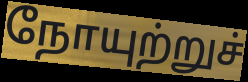
நோயுற்றுச்